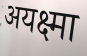
अयक्ष्मा